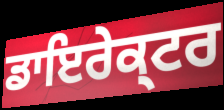
ਡਾਇਰੇਕ੍ਟਰ